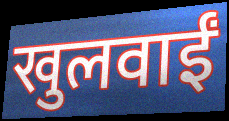
खुलवाईं